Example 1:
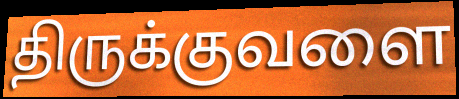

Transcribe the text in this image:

திருக்குவளை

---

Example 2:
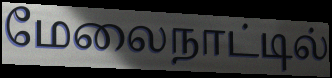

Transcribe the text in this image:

மேலைநாட்டில்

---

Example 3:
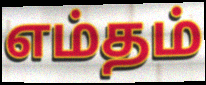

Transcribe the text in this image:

எம்தம்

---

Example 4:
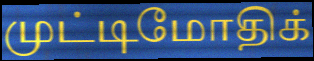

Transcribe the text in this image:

முட்டிமோதிக்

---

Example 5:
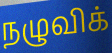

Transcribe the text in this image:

நழுவிக்